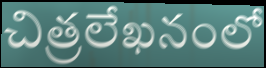
చిత్రలేఖనంలో